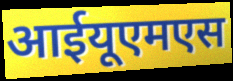
आईयूएमएस